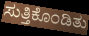
ಸುತ್ತಿಕೊಂಡಿತು